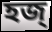
হজ্